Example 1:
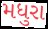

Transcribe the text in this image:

મધુરા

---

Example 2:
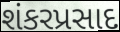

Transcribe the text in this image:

શંકરપ્રસાદ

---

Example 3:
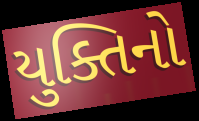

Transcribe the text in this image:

યુક્તિનો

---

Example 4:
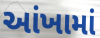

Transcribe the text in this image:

આંખામાં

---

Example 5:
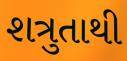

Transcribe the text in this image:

શત્રુતાથી